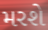
મરશે